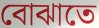
বোঝাতে